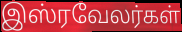
இஸ்ரவேலர்கள்